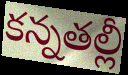
కన్నతల్లీ